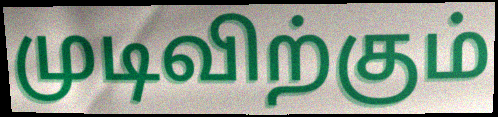
முடிவிற்கும்